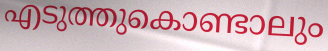
എടുത്തുകൊണ്ടാലും